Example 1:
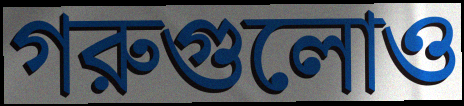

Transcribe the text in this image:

গরুগুলোও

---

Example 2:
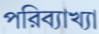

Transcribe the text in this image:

পরিব্যাখ্যা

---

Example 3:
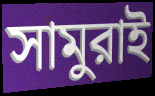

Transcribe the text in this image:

সামুরাই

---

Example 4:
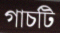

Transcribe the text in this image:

গাচটি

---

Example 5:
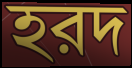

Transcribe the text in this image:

হরদ